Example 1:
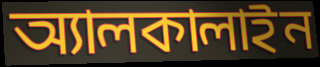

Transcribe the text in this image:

অ্যালকালাইন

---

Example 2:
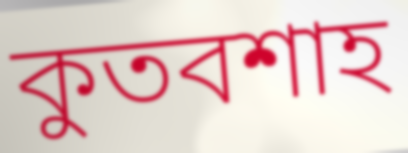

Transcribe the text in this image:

কুতবশাহ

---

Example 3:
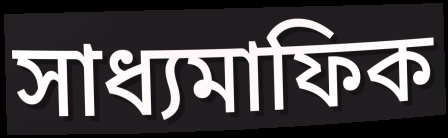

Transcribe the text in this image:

সাধ্যমাফিক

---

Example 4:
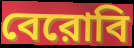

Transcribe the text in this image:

বেরোবি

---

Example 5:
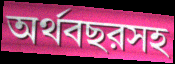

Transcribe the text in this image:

অর্থবছরসহ